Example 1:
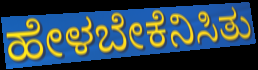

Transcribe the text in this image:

ಹೇಳಬೇಕೆನಿಸಿತು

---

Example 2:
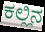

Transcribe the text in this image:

ಕಲ್ಲಿನ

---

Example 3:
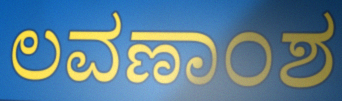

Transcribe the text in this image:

ಲವಣಾಂಶ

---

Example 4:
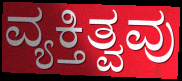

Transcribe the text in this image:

ವ್ಯಕ್ತಿತ್ವವು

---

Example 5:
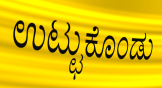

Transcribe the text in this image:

ಉಟ್ಟುಕೊಂಡು